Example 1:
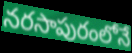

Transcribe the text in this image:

నరసాపురంలోనే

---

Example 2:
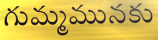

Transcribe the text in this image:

గుమ్మమునకు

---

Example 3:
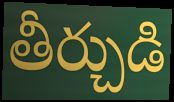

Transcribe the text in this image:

తీర్చుడి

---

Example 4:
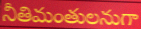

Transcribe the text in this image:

నీతిమంతులనుగా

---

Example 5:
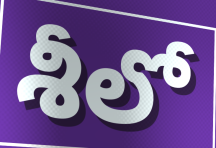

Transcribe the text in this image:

శీలో